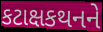
કટાક્ષકથનને